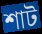
শাট